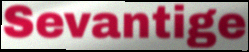
Sevantige